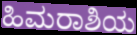
ಹಿಮರಾಶಿಯ